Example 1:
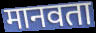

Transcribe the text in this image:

मानवता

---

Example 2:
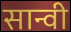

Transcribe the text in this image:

सान्वी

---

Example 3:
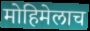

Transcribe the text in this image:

मोहिमेलाच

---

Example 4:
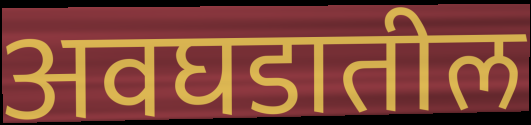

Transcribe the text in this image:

अवघडातील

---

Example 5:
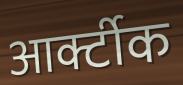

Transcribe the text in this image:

आर्क्टीक